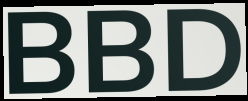
BBD